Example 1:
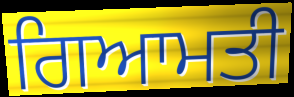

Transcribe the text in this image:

ਗਿਆਮਤੀ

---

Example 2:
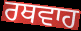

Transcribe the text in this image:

ਰਥਵਾਹ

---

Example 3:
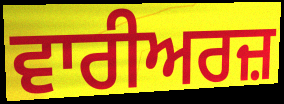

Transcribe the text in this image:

ਵਾਰੀਅਰਜ਼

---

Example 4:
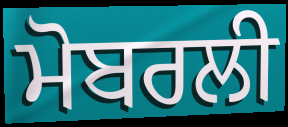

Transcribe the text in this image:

ਮੋਬਰਲੀ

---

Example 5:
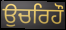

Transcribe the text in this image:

ਉਚਰਿਹੌ